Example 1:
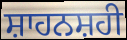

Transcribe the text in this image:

ਸ਼ਾਹਨਸ਼ਹੀ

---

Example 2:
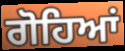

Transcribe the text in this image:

ਗੋਹਿਆਂ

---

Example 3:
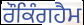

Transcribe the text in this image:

ਰੌਕਿੰਗਹੈਮ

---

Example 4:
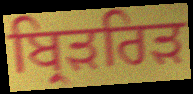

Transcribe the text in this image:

ਬ੍ਰਿੜਰਿੜ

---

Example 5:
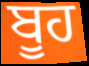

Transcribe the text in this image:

ਬੂਹ